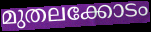
മുതലക്കോടം